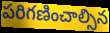
పరిగణించాల్సిన